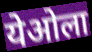
येओला